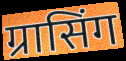
ग्रासिंग